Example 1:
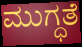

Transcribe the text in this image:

ಮುಗ್ಧತೆ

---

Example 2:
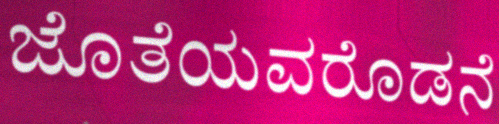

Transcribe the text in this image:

ಜೊತೆಯವರೊಡನೆ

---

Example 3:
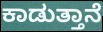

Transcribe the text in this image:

ಕಾಡುತ್ತಾನೆ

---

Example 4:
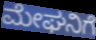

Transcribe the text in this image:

ಮೇಘನಿಗೆ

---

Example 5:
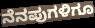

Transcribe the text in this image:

ನೆನಪುಗಳಿಗೂ